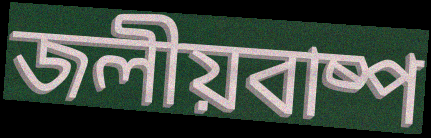
জলীয়বাষ্প